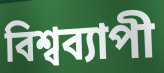
বিশ্বব্যাপী